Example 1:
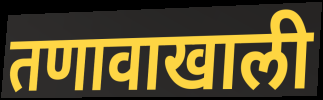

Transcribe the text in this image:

तणावाखाली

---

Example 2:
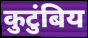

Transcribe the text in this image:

कुटुंबिय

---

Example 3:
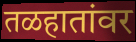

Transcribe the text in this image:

तळहातांवर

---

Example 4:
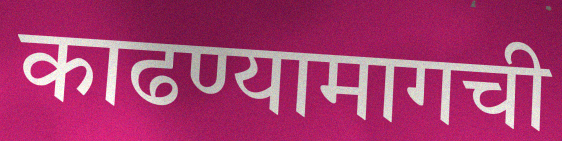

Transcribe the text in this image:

काढण्यामागची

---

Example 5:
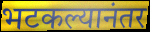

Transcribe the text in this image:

भटकल्यानंतर